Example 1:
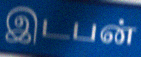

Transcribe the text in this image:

இடபன்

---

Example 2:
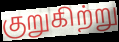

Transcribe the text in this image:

குறுகிற்று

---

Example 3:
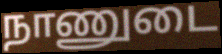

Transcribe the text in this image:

நாணுடை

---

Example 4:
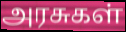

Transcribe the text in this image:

அரசுகள்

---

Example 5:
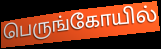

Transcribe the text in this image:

பெருங்கோயில்